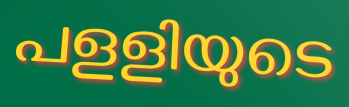
പളളിയുടെ